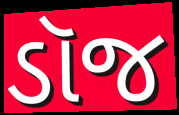
ડૉજ